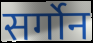
सर्गोन